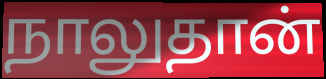
நாலுதான்